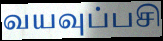
வயவுப்பசி